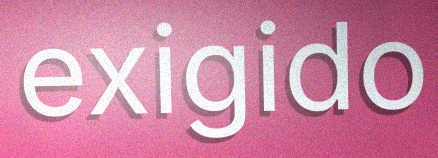
exigido